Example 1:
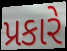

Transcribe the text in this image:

પ્રકારે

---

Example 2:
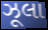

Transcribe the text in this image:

ઝૂલા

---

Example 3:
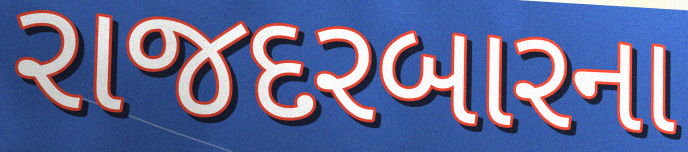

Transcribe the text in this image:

રાજદરબારના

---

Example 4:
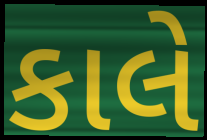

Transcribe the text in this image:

કાલે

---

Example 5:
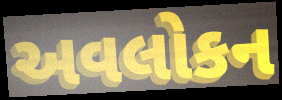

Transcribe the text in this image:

અવલોકન